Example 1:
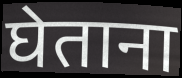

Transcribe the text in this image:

घेताना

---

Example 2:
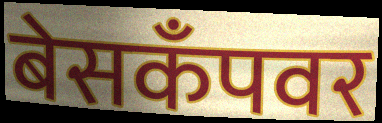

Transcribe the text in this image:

बेसकॅंपवर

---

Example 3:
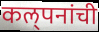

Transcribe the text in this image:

कल्पनांची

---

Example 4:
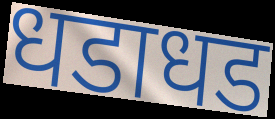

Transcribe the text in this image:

धडाधड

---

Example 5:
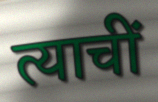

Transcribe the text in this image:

त्याचीं